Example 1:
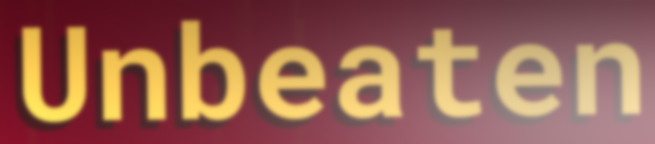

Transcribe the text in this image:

Unbeaten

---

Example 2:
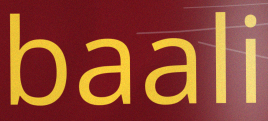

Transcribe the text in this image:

baali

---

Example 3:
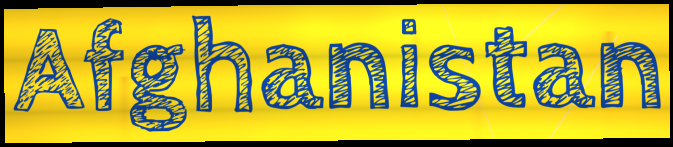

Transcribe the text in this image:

Afghanistan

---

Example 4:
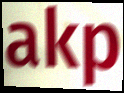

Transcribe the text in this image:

akp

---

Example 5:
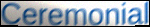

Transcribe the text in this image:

Ceremonial